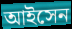
আইসেন